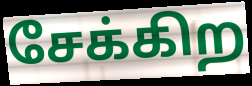
சேக்கிற